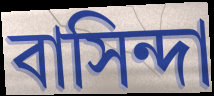
বাসিন্দা